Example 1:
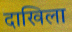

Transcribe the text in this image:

दाखिला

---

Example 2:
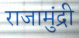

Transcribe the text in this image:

राजामुंद्री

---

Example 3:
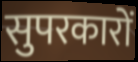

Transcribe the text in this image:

सुपरकारों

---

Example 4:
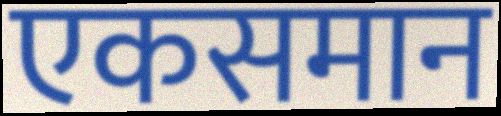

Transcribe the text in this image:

एकसमान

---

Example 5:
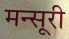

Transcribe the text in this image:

मन्सूरी